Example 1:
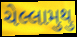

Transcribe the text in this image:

ચેલ્લામુથુ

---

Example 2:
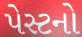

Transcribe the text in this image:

પેસ્ટનો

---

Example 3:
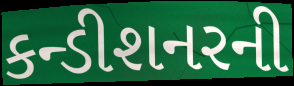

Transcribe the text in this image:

કન્ડીશનરની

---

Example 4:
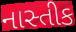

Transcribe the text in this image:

નાસ્તીક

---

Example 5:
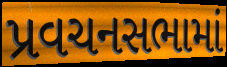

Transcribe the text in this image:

પ્રવચનસભામાં